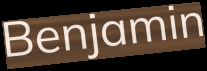
Benjamin